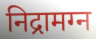
निद्रामग्न